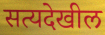
सत्यदेखील